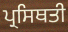
ਪ੍ਰਸਿਥਤੀ